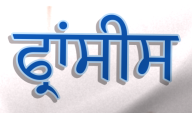
ਫ੍ਰਾਂਸੀਸ